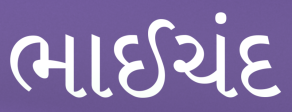
ભાઈચંદ